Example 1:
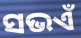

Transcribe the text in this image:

ସଭଏଁ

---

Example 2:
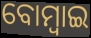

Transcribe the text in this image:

ବୋମ୍ୱାଇ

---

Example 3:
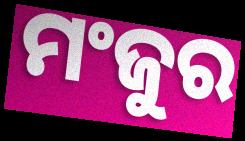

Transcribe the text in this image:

ମଂଜୁର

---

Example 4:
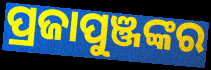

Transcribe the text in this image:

ପ୍ରଜାପୁଞ୍ଜଙ୍କର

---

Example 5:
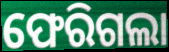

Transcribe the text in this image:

ଫେରିଗଲା